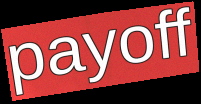
payoff